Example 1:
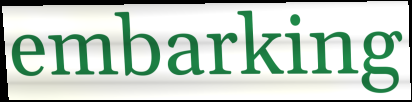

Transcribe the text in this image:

embarking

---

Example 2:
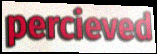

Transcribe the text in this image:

percieved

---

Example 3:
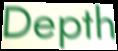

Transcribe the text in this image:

Depth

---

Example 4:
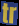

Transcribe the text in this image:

tr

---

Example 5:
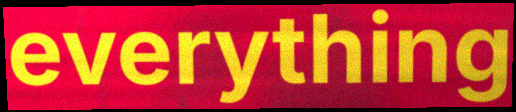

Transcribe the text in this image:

everything